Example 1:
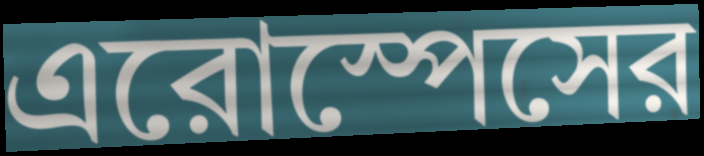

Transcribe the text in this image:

এরোস্পেসের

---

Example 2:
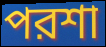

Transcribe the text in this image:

পরশা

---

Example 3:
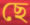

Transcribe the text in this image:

ছে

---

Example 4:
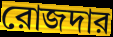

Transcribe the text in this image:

রোজদার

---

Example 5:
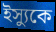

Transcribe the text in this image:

ইস্যুকে